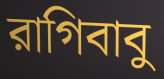
রাগিবাবু